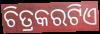
ଚିତ୍ରକରଟିଏ